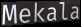
Mekala